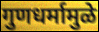
गुणधर्मामुळे